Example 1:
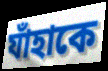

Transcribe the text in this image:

যাঁহাকে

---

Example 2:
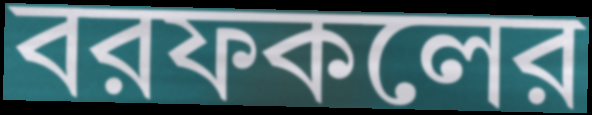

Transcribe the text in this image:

বরফকলের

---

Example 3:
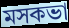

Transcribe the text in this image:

মসকভা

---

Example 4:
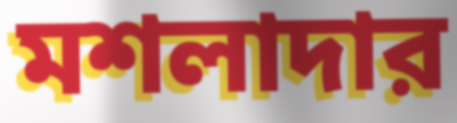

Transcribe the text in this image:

মশলাদার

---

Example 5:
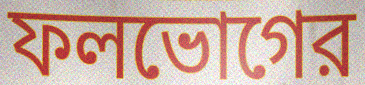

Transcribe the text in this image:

ফলভোগের